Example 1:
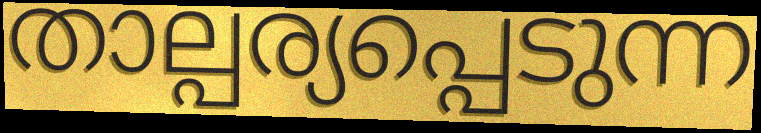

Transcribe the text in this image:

താല്പര്യപ്പെടുന്ന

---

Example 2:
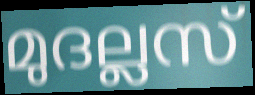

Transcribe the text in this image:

മുദല്ലസ്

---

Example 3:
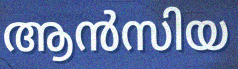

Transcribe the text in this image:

ആൻസിയ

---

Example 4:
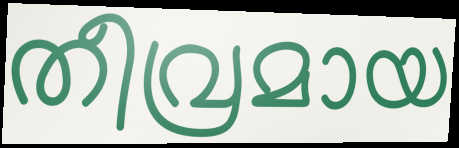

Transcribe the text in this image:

തീവ്രമായ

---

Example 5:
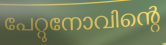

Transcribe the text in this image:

പേറ്റുനോവിന്റെ